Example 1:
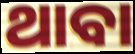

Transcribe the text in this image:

ଥାବା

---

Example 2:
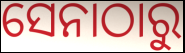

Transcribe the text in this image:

ସେନାଠାରୁ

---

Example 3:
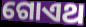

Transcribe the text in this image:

ଗୋଏଥ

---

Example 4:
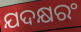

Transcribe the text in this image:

ଯଦକ୍ଷରଂ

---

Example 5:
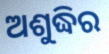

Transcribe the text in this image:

ଅଶୁଦ୍ଧିର